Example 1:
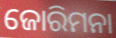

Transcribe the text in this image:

ଜୋରିମନା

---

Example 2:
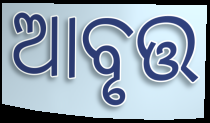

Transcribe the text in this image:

ଆବୃତ୍ତ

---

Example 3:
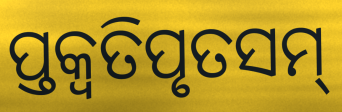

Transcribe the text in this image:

ପ୍ତକ୍ଵତିପୃତସମ୍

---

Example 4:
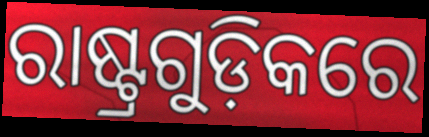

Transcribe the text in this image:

ରାଷ୍ଟ୍ରଗୁଡ଼ିକରେ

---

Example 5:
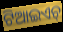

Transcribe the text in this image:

ଟିଆଇଏଚ୍